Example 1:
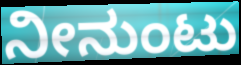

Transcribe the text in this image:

ನೀನುಂಟು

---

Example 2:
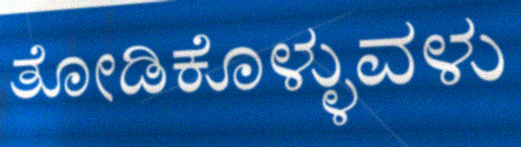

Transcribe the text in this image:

ತೋಡಿಕೊಳ್ಳುವಳು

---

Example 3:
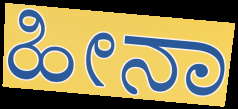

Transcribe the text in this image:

ಹೀನಾ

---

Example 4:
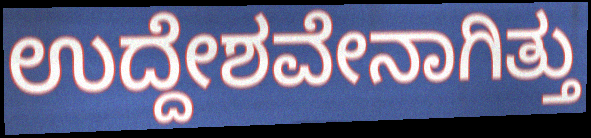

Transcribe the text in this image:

ಉದ್ದೇಶವೇನಾಗಿತ್ತು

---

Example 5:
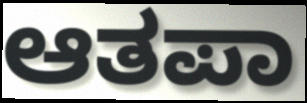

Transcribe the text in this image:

ಆತಪಾ